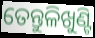
ତେନ୍ତୁଳିଖୁଣ୍ଟି